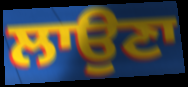
ਲਾਉਣਾ